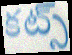
కట్స్